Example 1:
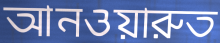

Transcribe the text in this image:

আনওয়ারুত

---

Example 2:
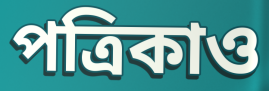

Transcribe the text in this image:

পত্রিকাও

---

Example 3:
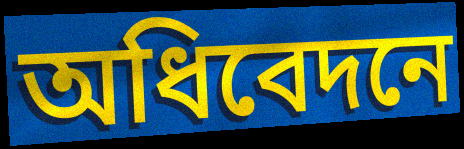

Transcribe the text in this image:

অধিবেদনে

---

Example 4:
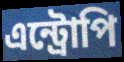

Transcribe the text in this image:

এন্ট্রোপি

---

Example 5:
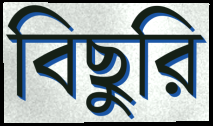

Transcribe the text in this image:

বিছুরি